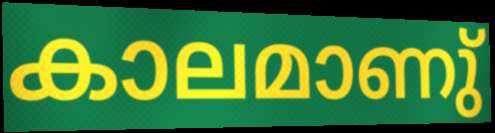
കാലമാണു്